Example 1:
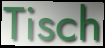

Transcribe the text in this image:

Tisch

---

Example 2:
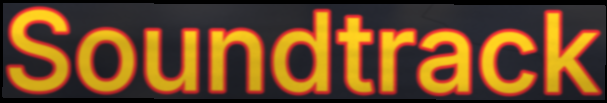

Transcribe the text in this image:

Soundtrack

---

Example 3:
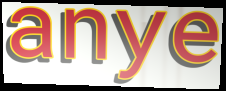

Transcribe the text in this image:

anye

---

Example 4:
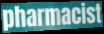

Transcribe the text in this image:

pharmacist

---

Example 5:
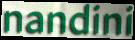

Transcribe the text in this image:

nandini